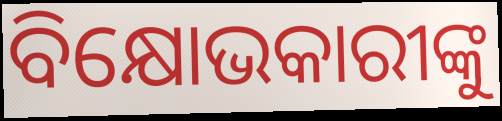
ବିକ୍ଷୋଭକାରୀଙ୍କୁ